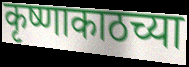
कृष्णाकाठच्या